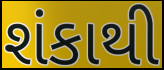
શંકાથી